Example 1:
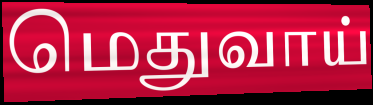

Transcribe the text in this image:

மெதுவாய்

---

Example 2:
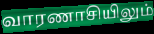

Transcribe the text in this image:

வாரணாசியிலும்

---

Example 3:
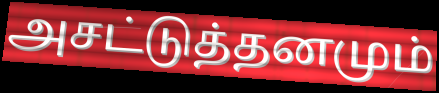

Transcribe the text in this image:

அசட்டுத்தனமும்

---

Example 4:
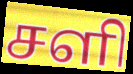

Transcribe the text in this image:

சளி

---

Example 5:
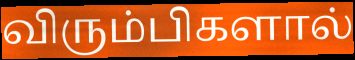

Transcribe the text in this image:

விரும்பிகளால்